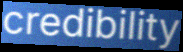
credibility